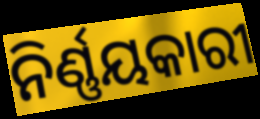
ନିର୍ଣ୍ଣୟକାରୀ